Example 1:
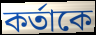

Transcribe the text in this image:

কর্তাকে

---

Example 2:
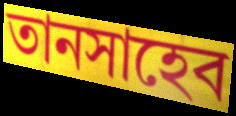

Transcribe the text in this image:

তানসাহেব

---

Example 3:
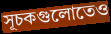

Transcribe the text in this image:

সূচকগুলোতেও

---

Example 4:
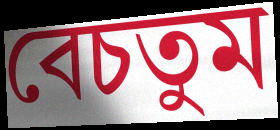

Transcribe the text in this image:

বেচতুম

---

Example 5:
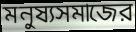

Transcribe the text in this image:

মনুষ্যসমাজের